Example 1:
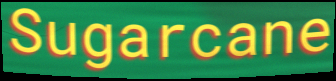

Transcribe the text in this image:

Sugarcane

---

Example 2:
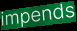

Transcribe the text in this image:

impends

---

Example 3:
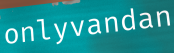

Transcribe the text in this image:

onlyvandan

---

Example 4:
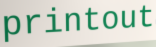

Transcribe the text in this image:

printout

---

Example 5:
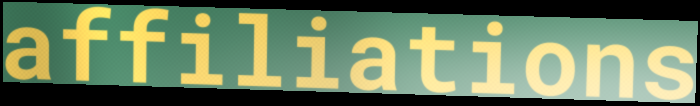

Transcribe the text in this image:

affiliations